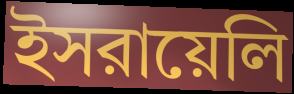
ইসরায়েলি